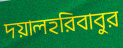
দয়ালহরিবাবুর